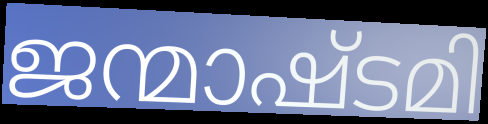
ജന്മാഷ്ടമി